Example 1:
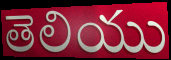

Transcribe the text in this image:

తెలియు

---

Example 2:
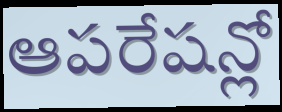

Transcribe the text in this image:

ఆపరేషన్లో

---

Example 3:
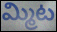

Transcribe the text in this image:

మ్మిట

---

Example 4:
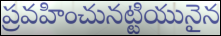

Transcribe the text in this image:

ప్రవహించునట్టియునైన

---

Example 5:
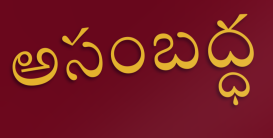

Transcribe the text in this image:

అసంబద్ధ